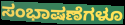
ಸಂಭಾಷಣೆಗಳೂ